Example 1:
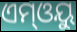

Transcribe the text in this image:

ଏମ୍ଓୟୁ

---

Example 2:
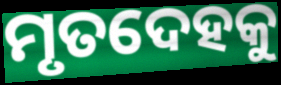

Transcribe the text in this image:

ମୃତଦେହକୁ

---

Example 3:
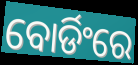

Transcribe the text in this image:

ବୋର୍ଡିଂରେ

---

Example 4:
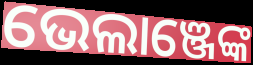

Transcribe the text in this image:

ଭେଲାଞ୍ଜେଙ୍କ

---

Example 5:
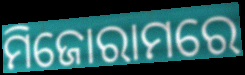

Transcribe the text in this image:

ମିଜୋରାମରେ